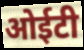
ओईटी